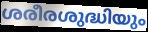
ശരീരശുദ്ധിയും